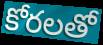
కోరలతో